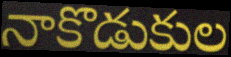
నాకొడుకుల